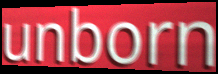
unborn